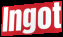
Ingot